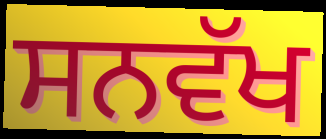
ਸਨਵੱਖ